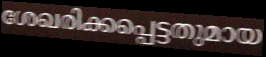
ശേഖരിക്കപ്പെട്ടതുമായ